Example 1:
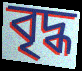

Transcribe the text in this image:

বৃদ্ধ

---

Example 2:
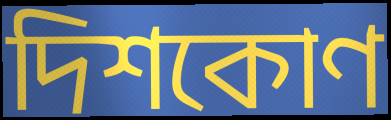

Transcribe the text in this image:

দিশকোণ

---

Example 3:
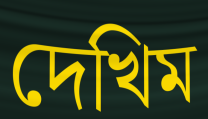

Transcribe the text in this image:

দেখিম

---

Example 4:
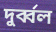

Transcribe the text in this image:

দুৰ্ব্বল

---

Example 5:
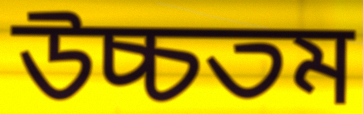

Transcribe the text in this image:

উচ্চতম